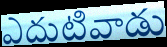
ఎదుటివాడు